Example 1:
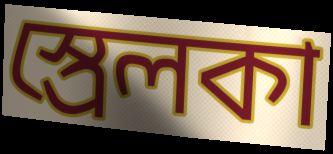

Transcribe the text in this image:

স্ত্রেলকা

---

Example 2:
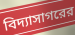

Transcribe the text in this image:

বিদ্যাসাগরের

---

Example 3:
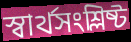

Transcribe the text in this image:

স্বার্থসংশ্লিষ্ট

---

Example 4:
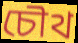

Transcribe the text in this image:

চৌথ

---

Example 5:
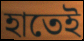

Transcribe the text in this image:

হাতেই